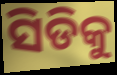
ସିଡିକୁ